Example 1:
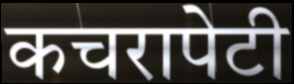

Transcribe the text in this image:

कचरापेटी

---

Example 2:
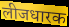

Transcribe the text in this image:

लीजधारक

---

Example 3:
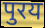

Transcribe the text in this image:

पुरय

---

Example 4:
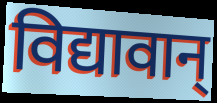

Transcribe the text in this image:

विद्यावान्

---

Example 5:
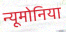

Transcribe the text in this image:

न्यूमोनिया